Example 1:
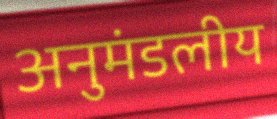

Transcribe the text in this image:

अनुमंडलीय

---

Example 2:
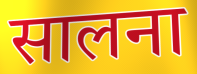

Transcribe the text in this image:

सालना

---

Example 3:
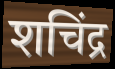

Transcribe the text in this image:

शचिंद्र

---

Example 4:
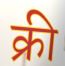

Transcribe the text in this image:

क्री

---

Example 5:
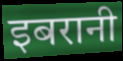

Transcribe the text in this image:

इबरानी